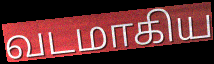
வடமாகிய